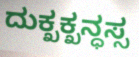
ದುಕ್ಖಕ್ಖನ್ಧಸ್ಸ